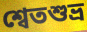
শ্বেতশুভ্র